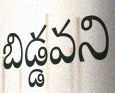
బిడ్డవని